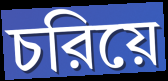
চরিয়ে